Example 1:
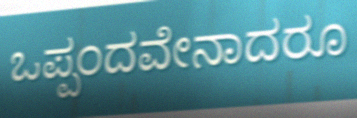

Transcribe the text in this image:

ಒಪ್ಪಂದವೇನಾದರೂ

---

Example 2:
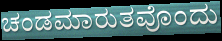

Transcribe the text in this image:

ಚಂಡಮಾರುತವೊಂದು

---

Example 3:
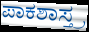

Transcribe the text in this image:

ಪಾಕಶಾಸ್ತ್ರ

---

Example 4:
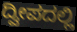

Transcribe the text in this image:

ದ್ವೀಪದಲ್ಲಿ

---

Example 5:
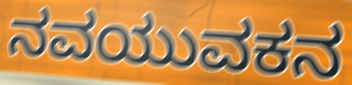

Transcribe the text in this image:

ನವಯುವಕನ